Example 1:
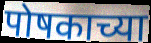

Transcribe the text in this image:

पोषकाच्या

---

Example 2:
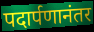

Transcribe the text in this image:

पदार्पणानंतर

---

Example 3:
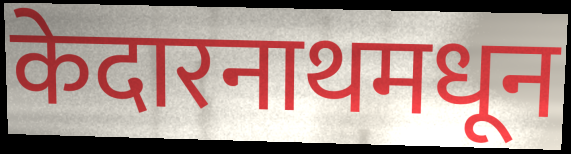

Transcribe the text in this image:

केदारनाथमधून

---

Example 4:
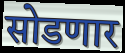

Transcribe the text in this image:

सोडणार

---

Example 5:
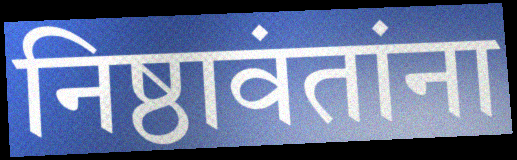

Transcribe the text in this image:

निष्ठावंतांना